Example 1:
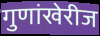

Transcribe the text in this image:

गुणांखेरीज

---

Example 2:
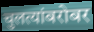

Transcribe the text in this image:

चुलत्यांबरोबर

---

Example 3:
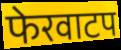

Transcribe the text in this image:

फेरवाटप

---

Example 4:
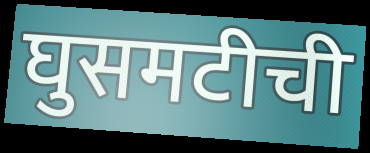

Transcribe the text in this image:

घुसमटीची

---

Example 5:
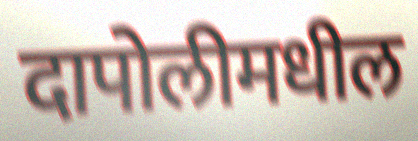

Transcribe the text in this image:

दापोलीमधील